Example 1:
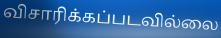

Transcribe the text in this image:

விசாரிக்கப்படவில்லை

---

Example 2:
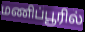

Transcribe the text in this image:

மணிப்பூரில்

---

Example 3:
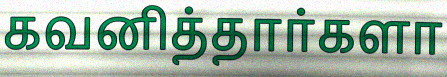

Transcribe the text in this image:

கவனித்தார்களா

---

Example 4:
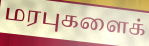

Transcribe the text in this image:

மரபுகளைக்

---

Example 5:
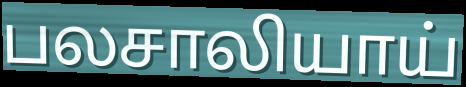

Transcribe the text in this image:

பலசாலியாய்